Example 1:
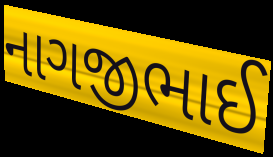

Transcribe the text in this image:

નાગજીભાઈ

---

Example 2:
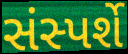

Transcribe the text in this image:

સંસ્પર્શે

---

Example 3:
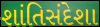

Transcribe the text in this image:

શાંતિસંદેશા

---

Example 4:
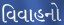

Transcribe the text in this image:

વિવાહનો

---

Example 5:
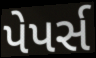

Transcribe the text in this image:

પેપર્સ